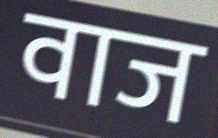
वाज